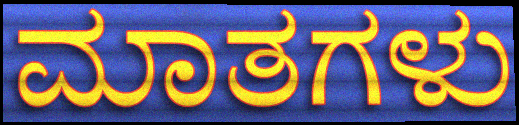
ಮಾತಗಳು